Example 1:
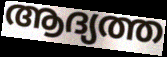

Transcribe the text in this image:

ആദ്യത്ത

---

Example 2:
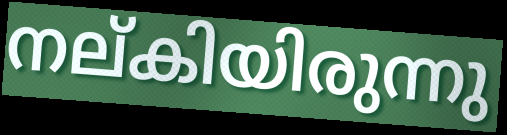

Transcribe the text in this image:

നല്കിയിരുന്നു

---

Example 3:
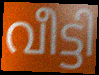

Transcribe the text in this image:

വീട്ടി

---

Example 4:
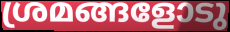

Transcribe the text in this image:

ശ്രമങ്ങളോടു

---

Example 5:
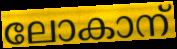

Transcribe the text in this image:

ലോകാന്